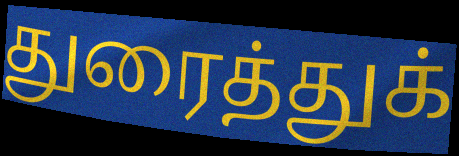
துரைத்துக்